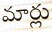
మార్లు